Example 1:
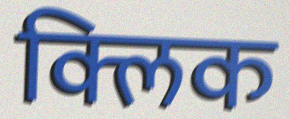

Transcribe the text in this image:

क्लिक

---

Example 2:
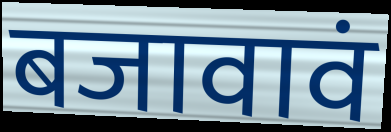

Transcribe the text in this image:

बजावावं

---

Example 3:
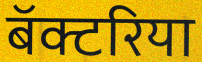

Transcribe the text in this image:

बॅक्टरिया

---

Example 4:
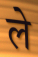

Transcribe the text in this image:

ले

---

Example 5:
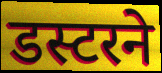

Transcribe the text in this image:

डस्टरने